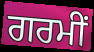
ਗਰਮੀਂ